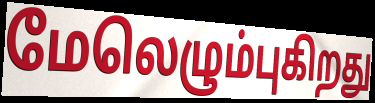
மேலெழும்புகிறது